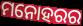
ମନୋହରର